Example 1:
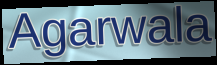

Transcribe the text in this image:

Agarwala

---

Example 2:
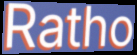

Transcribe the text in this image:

Ratho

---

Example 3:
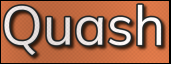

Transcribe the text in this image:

Quash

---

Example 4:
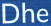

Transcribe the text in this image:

Dhe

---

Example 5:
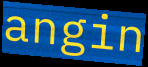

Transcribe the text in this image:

angin